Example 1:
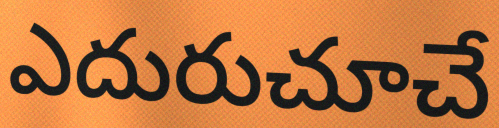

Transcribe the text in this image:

ఎదురుచూచే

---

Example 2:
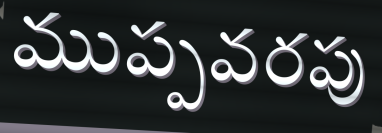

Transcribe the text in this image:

ముప్పవరపు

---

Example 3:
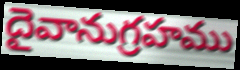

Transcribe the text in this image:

దైవానుగ్రహము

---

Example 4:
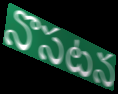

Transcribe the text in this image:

నొసటన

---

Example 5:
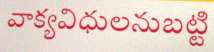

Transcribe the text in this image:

వాక్యవిధులనుబట్టి